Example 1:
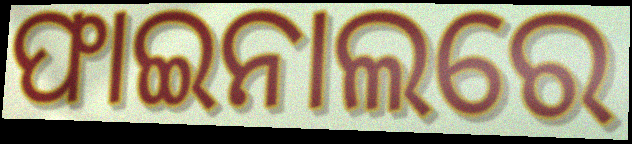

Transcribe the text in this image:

ଫାଇନାଲରେ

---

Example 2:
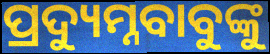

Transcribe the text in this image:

ପ୍ରଦ୍ୟୁମ୍ନବାବୁଙ୍କୁ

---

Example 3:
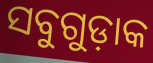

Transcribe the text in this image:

ସବୁଗୁଡ଼ାକ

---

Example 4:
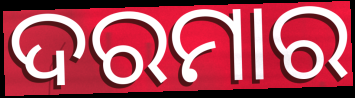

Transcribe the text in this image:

ଦରମାର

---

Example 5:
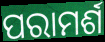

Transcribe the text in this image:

ପରାମର୍ଶ